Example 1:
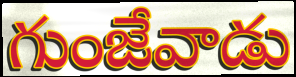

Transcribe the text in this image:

గుంజేవాడు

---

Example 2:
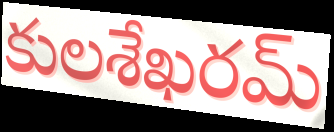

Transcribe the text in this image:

కులశేఖరమ్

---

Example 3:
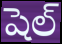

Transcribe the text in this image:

షెల్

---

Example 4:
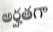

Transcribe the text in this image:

అర్హతగా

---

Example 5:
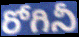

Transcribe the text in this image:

రోగినీ